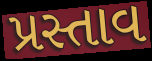
પ્રસ્તાવ